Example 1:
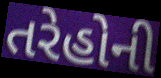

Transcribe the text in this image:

તરેહોની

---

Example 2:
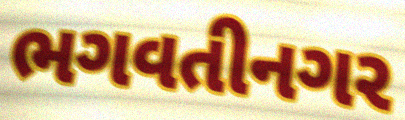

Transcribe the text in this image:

ભગવતીનગર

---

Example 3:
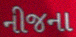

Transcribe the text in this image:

નીજના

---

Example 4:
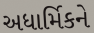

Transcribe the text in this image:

અધાર્મિકને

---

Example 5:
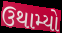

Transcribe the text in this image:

ઉથામ્યો